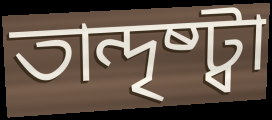
তান্দৃষ্ট্বা